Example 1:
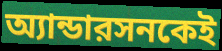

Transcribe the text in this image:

অ্যান্ডারসনকেই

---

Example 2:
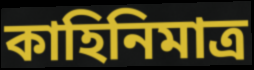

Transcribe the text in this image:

কাহিনিমাত্র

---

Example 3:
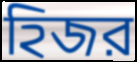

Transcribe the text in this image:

হিজর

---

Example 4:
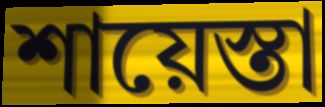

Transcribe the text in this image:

শায়েস্তা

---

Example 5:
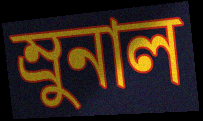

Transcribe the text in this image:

ম্রুনাল